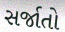
સર્જાતો